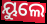
ୟୁଲେ